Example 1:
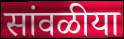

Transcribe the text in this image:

सांवळीया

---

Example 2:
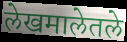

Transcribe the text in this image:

लेखमालेतले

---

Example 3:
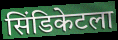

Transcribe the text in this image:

सिंडिकेटला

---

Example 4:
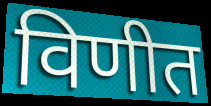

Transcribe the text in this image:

विणीत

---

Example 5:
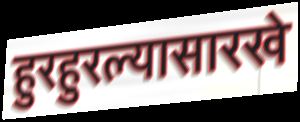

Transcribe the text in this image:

हुरहुरल्यासारखे